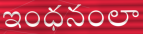
ఇంధనంలా